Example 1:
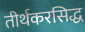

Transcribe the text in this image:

तीर्थकरसिद्ध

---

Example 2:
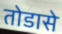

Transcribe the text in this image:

तोडासे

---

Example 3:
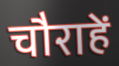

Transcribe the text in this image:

चौराहें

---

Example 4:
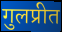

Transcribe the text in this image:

गुलप्रीत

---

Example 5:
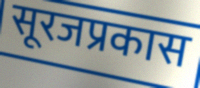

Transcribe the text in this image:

सूरजप्रकास